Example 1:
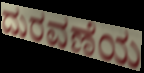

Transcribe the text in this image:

ದುರವಣೆಯ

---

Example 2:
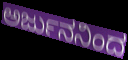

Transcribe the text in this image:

ಅರ್ಜುನನಿಂದ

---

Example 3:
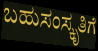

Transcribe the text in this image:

ಬಹುಸಂಸ್ಕೃತಿಗೆ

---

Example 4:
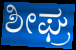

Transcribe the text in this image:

ಶೀಘ್ರ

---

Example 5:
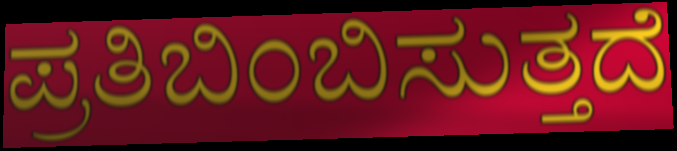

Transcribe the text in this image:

ಪ್ರತಿಬಿಂಬಿಸುತ್ತದೆ